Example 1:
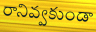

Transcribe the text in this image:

రానివ్వకుండా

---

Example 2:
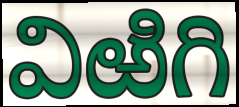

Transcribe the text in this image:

విఱిగి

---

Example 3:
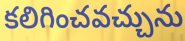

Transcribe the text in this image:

కలిగించవచ్చును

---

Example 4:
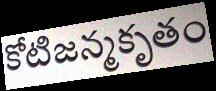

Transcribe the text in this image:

కోటిజన్మకృతం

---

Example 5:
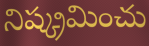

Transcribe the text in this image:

నిష్క్రమించు